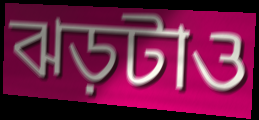
ঝড়টাও